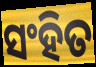
ସଂହିତ